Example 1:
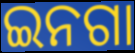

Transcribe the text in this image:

ଇନଗା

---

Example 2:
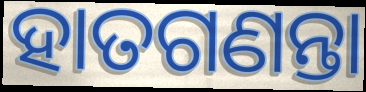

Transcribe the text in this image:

ହାତଗଣନ୍ତା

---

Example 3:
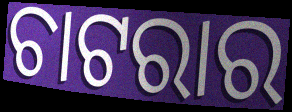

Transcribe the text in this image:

ଚାଟରାର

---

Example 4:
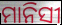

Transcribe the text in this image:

ମାନିସୀ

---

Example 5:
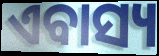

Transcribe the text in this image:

ଏବାସ୍ୟ